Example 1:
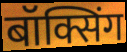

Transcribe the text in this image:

बॉक्सिंग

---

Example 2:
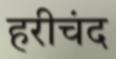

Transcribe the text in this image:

हरीचंद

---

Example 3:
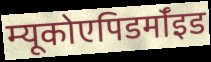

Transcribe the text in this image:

म्यूकोएपिडर्मॉइड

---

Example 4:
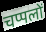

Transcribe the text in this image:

चप्पलों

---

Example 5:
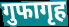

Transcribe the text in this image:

गुफागृह